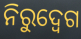
ନିରୁଦ୍ବେଗ